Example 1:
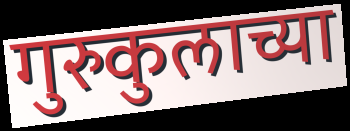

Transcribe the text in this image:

गुरुकुलाच्या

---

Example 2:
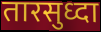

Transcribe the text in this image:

तारसुध्दा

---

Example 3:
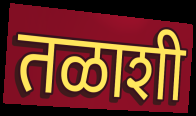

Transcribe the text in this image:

तळाशी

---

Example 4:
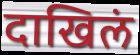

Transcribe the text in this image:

दाखिलं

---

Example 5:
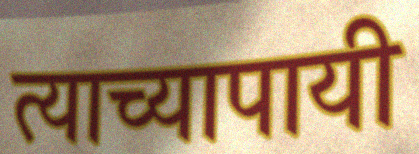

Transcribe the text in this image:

त्याच्यापायी